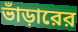
ভাঁড়ারের